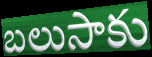
బలుసాకు